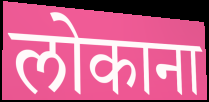
लोकाना